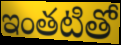
ఇంతటితో